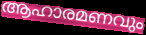
ആഹാരമണവും